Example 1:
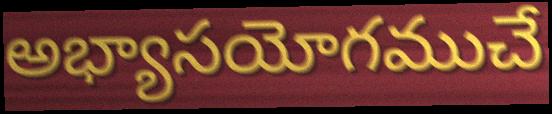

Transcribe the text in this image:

అభ్యాసయోగముచే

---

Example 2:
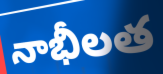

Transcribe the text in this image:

నాభీలత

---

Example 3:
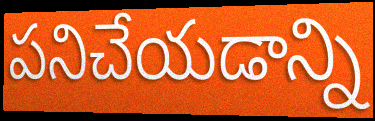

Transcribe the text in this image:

పనిచేయడాన్ని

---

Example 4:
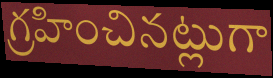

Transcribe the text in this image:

గ్రహించినట్లుగా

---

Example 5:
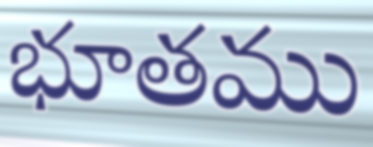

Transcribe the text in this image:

భూతము